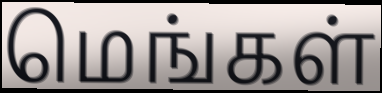
மெங்கள்